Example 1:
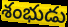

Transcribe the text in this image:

శంభుడు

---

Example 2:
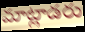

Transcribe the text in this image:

మాట్లాడరు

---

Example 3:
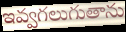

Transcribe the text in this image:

ఇవ్వగలుగుతాను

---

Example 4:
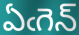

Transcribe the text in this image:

ఏఁగెన్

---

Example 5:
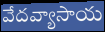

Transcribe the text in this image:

వేదవ్యాసాయ